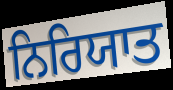
ਨਿਰਿਯਾਤ